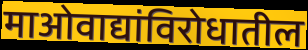
माओवाद्यांविरोधातील